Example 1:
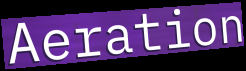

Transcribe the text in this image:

Aeration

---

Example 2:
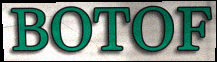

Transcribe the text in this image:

BOTOF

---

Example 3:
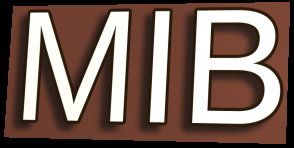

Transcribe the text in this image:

MIB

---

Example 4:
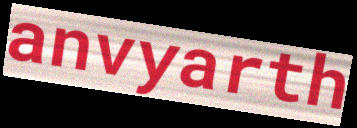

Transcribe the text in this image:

anvyarth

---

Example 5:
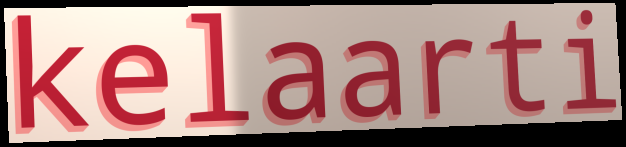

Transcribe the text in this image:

kelaarti